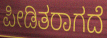
ಪೀಡಿತರಾಗದೆ